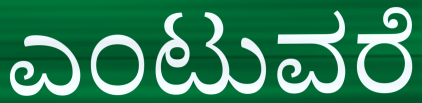
ಎಂಟುವರೆ